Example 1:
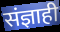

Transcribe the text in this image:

संज्ञाही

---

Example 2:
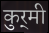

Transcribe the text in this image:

कुर्मी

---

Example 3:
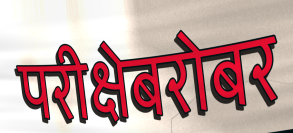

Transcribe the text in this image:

परीक्षेबरोबर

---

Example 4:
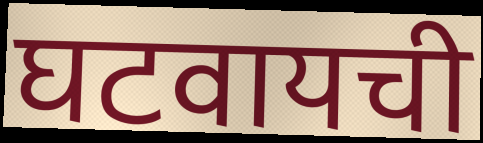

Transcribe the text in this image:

घटवायची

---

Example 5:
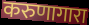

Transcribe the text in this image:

करुणागारा